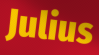
Julius